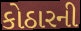
કોઠારની